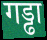
गड्ढा